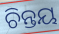
ଚିନ୍ତୟ